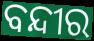
ବନ୍ଦୀର